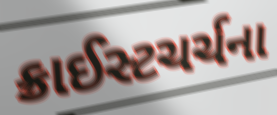
ક્રાઈસ્ટચર્ચના